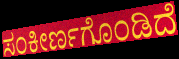
ಸಂಕೀರ್ಣಗೊಂಡಿದೆ